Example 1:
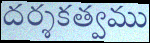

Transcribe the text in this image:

దర్శకత్వము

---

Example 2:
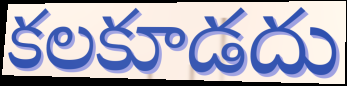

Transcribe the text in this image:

కలకూడదు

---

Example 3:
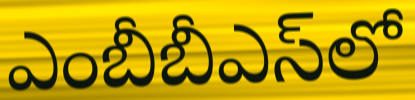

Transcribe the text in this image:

ఎంబీబీఎస్‌లో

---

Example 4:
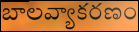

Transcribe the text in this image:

బాలవ్యాకరణం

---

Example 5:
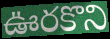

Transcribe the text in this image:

ఊరకొని